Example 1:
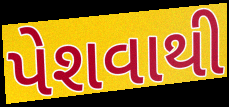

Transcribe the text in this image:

પેશવાથી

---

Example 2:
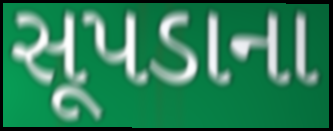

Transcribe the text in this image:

સૂપડાના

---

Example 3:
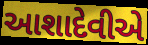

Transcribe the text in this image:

આશાદેવીએ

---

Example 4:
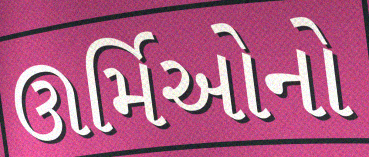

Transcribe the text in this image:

ઊર્મિઓનો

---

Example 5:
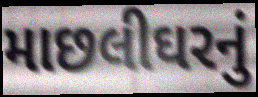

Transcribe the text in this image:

માછલીઘરનું